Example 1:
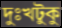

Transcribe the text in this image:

দুঃখটুকু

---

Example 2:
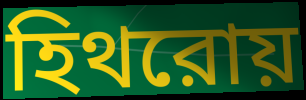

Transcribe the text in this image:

হিথরোয়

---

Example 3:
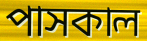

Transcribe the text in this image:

পাসকাল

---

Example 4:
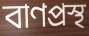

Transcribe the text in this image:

বাণপ্রস্থ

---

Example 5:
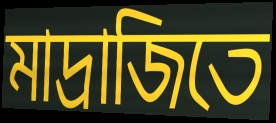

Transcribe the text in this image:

মাদ্রাজিতে